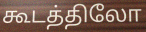
கூடத்திலோ